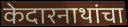
केदारनाथांचा